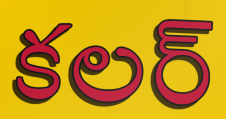
కలర్